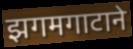
झगमगाटाने